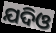
ଯଦିଓ